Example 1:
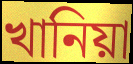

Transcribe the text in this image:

খানিয়া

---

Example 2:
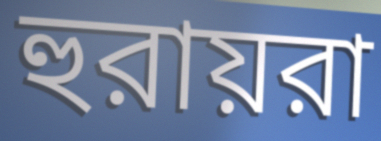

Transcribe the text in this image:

হুরায়রা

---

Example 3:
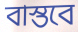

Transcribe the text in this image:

বাস্তবে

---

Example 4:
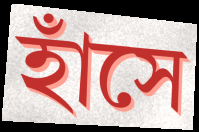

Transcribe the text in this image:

হাঁসে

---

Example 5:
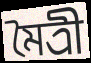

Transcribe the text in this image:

মৈত্রী